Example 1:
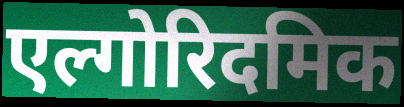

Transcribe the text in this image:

एल्गोरिदमिक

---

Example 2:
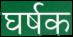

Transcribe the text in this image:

घर्षक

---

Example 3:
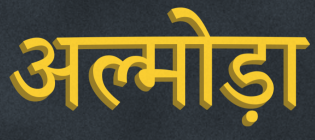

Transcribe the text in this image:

अल्मोड़ा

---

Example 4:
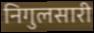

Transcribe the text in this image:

निगुलसारी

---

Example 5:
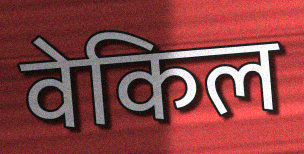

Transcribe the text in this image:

वेकिल